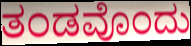
ತಂಡವೊಂದು